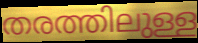
തരത്തിലുള്ള